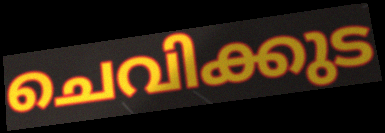
ചെവിക്കുട